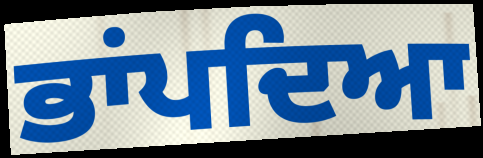
ਭਾਂਪਦਿਆ